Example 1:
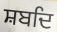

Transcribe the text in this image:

ਸ਼ਬਦਿ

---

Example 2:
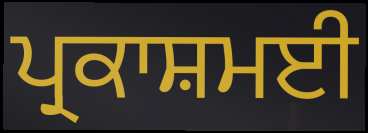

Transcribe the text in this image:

ਪ੍ਰਕਾਸ਼ਮਈ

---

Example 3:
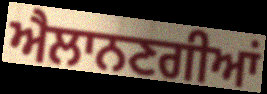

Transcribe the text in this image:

ਐਲਾਨਣਗੀਆਂ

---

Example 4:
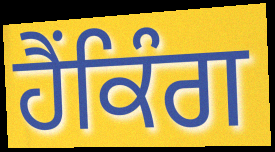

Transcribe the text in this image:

ਹੈਂਕਿੰਗ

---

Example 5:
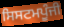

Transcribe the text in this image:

ਸਿਸਟਮਪੂੰਜੀ